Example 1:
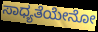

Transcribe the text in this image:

ಸಾಧ್ಯತೆಯೇನೋ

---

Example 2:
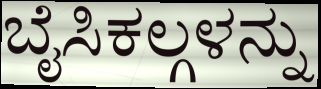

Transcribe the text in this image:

ಬೈಸಿಕಲ್ಗಳನ್ನು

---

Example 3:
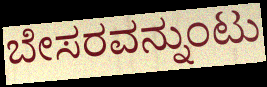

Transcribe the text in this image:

ಬೇಸರವನ್ನುಂಟು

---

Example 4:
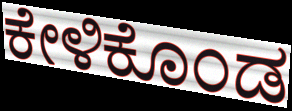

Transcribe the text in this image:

ಕೇಳಿಕೊಂಡ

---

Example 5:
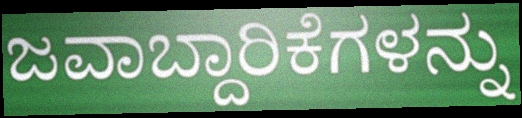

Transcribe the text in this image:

ಜವಾಬ್ದಾರಿಕೆಗಳನ್ನು